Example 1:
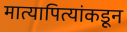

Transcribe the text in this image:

मात्यापित्यांकडून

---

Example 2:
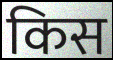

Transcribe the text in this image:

किस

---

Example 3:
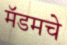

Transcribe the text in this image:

मॅडमचे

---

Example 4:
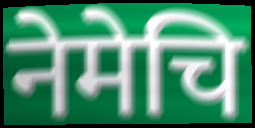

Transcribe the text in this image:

नेमेचि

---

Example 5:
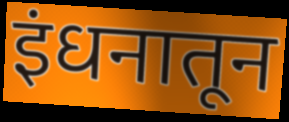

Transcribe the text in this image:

इंधनातून